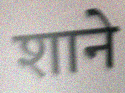
शाने